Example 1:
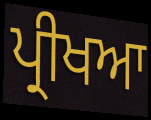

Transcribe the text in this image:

ਪ੍ਰੀਖਆ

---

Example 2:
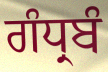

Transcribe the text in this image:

ਗੰਧ੍ਰਬੰ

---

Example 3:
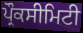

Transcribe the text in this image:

ਪ੍ਰੌਕਸੀਮਿਟੀ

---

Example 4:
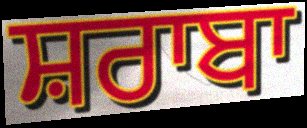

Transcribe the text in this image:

ਸ਼ਰਾਬਾ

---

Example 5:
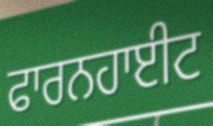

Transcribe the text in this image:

ਫਾਰਨਹਾਈਟ